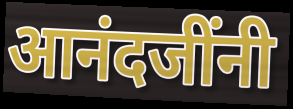
आनंदजींनी